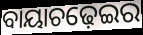
ବାୟାଚଢ଼େଇର